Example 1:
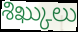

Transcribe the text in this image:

శిఖ్కులు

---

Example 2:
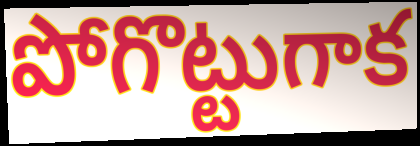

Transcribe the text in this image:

పోగొట్టుగాక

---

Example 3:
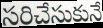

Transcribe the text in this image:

సరిచేసుకునే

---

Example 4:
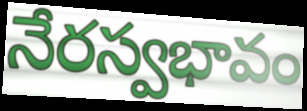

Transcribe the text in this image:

నేరస్వభావం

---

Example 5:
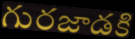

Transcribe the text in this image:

గురజాడకి